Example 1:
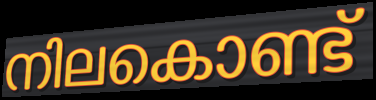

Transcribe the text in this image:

നിലകൊണ്ട്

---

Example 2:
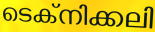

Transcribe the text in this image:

ടെക്‌നിക്കലി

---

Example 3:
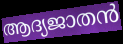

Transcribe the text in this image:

ആദ്യജാതൻ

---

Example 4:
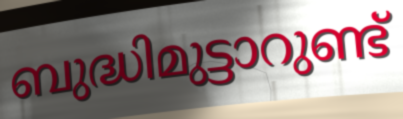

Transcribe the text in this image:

ബുദ്ധിമുട്ടാറുണ്ട്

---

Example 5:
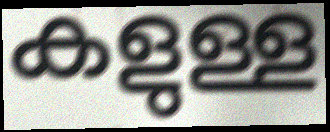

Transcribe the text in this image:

കളുള്ള